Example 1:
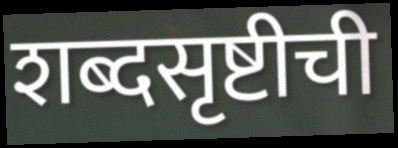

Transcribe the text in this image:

शब्दसृष्टीची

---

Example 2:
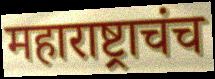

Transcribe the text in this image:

महाराष्ट्राचंच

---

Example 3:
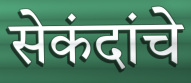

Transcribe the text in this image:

सेकंदांचे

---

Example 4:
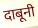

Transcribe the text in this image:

दाबूनी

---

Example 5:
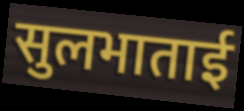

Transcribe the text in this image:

सुलभाताई